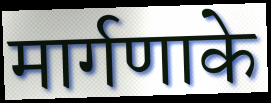
मार्गणाके